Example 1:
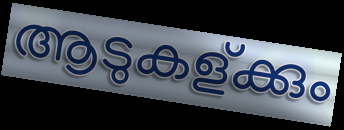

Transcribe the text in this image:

ആടുകള്ക്കും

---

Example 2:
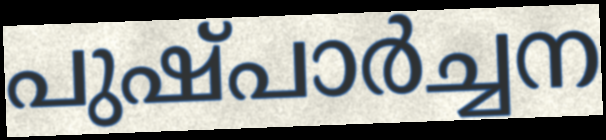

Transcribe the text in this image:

പുഷ്പാർച്ചന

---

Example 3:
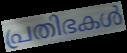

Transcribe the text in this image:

പ്രതിഭകൾ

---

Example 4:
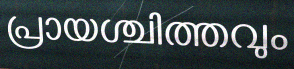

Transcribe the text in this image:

പ്രായശ്ചിത്തവും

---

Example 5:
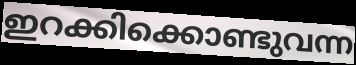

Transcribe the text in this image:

ഇറക്കിക്കൊണ്ടുവന്ന